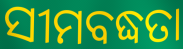
ସୀମବଦ୍ଧତା